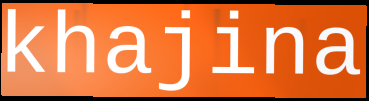
khajina